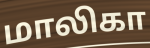
மாலிகா